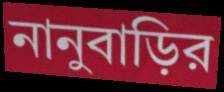
নানুবাড়ির